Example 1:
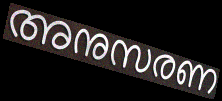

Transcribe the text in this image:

അനുസരണ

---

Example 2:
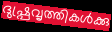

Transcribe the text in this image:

ദുഷ്പ്രവൃത്തികൾക്കു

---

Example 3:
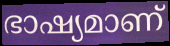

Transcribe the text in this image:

ഭാഷ്യമാണ്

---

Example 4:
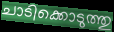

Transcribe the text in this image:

ചാടിക്കൊടുത്തു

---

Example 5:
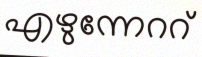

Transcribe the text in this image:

എഴുന്നേററ്